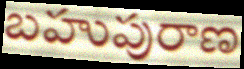
బహుపురాణ